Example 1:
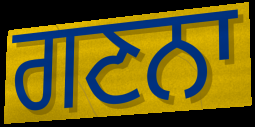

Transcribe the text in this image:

ਗਣਨਾ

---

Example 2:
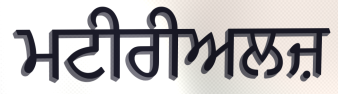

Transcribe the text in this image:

ਮਟੀਰੀਅਲਜ਼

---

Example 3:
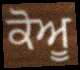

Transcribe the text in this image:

ਕੋਅੂ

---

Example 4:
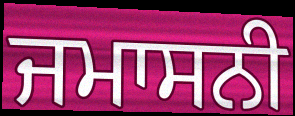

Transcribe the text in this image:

ਜਮਾਸਨੀ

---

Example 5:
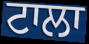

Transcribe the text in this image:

ਟਾਲਾ